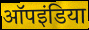
ऑपइंडिया